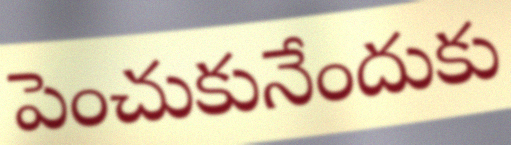
పెంచుకునేందుకు